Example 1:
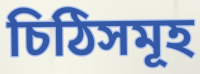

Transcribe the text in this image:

চিঠিসমূহ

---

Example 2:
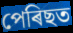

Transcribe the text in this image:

পেৰিছত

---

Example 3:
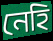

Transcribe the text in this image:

নেহি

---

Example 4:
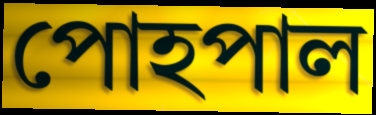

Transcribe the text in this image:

পোহপাল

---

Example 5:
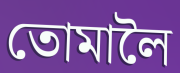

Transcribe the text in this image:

তোমালৈ